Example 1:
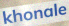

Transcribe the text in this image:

khonale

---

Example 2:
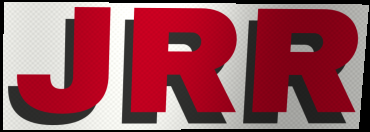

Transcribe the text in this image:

JRR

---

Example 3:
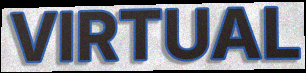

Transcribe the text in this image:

VIRTUAL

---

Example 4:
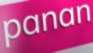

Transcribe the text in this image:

panan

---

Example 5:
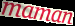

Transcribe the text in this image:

maman